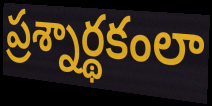
ప్రశ్నార్థకంలా